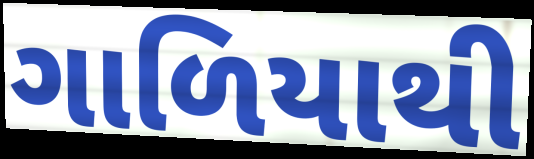
ગાળિયાથી